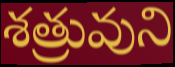
శత్రువుని